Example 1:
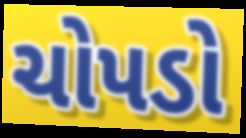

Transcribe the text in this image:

ચોપડો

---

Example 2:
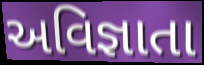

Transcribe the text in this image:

અવિજ્ઞાતા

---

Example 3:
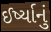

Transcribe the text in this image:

ઈર્ષ્યાનું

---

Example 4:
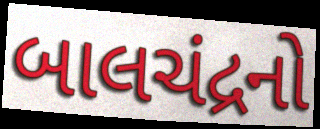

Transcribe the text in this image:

બાલચંદ્રનો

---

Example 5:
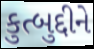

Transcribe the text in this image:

કુત્બુદ્દીને